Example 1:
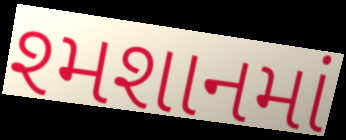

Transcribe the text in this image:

શ્મશાનમાં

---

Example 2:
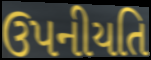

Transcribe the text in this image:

ઉપનીયતિ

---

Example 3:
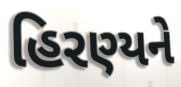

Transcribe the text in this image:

હિરણ્યને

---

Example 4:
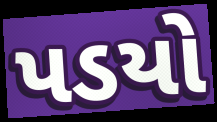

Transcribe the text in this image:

પડયો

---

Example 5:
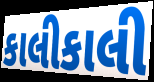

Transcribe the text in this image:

કાલીકાલી